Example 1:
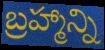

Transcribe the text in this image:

బ్రహ్మాన్ని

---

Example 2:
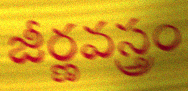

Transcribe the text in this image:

జీర్ణవస్త్రం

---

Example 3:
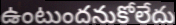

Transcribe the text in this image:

ఉంటుందనుకోలేదు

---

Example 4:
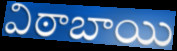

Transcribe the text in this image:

విఠాబాయి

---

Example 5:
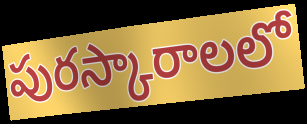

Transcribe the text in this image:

పురస్కారాలలో